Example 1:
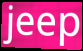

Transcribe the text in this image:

jeep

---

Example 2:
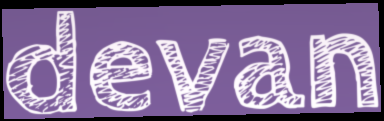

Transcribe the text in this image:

devan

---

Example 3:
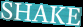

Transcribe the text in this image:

SHAKE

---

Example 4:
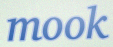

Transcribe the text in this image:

mook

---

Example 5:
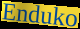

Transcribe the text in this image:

Enduko